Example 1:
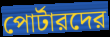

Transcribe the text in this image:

পোর্টারদের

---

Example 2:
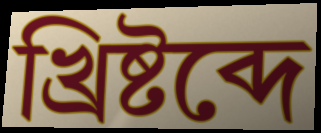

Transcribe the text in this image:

খ্রিষ্টব্দে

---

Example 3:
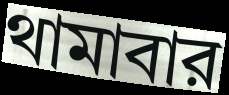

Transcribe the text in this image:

থামাবার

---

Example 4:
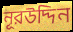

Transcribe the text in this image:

নূরউদ্দিন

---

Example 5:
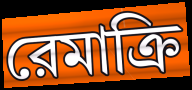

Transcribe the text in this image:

রেমাক্রি